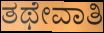
ತಥೇವಾತಿ